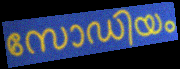
സോഡിയം